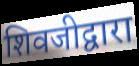
शिवजीद्वारा